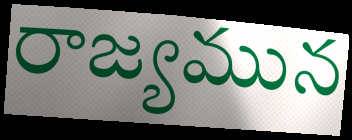
రాజ్యమున